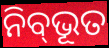
ନିବ୍‌ଭୂତ